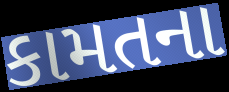
કામતના